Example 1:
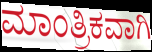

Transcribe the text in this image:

ಮಾಂತ್ರಿಕವಾಗಿ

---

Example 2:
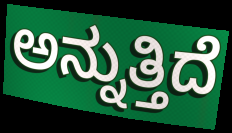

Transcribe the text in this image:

ಅನ್ನುತ್ತಿದೆ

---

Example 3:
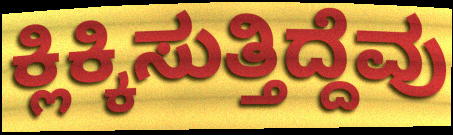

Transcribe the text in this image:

ಕ್ಲಿಕ್ಕಿಸುತ್ತಿದ್ದೆವು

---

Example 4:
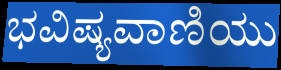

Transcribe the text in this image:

ಭವಿಷ್ಯವಾಣಿಯು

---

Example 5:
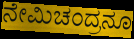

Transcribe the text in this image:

ನೇಮಿಚಂದ್ರನೂ